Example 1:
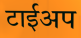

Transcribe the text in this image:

टाईअप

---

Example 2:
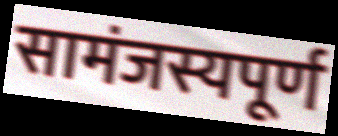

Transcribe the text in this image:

सामंजस्यपूर्ण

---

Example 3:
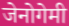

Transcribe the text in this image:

जेनोगेमी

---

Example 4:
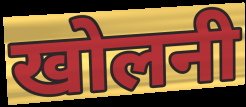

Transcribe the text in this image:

खोलनी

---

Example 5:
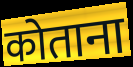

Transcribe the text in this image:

कोताना